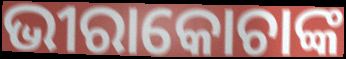
ଭୀରାକୋଚାଙ୍କ